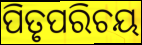
ପିତୃପରିଚୟ